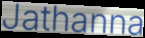
Jathanna